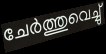
ചേർത്തുവെച്ചു്